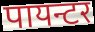
पायन्टर